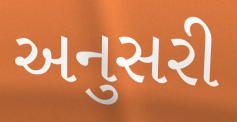
અનુસરી